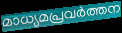
മാധ്യമപ്രവർത്തന